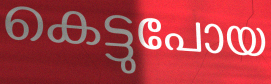
കെട്ടുപോയ